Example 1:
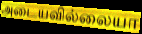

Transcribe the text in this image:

அடையவில்லையா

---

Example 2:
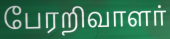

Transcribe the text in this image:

பேரறிவாளர்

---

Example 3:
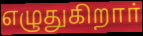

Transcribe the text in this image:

எழுதுகிறார்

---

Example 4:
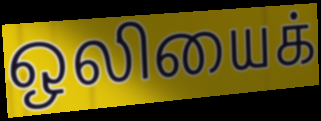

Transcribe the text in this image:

ஒலியைக்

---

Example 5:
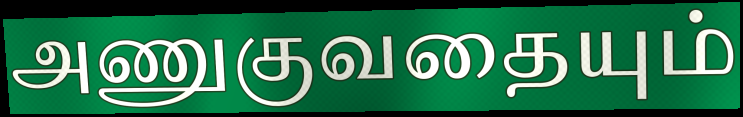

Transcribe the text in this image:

அணுகுவதையும்